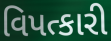
વિપત્કારી